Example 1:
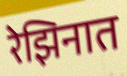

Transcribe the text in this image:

रेझिनात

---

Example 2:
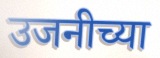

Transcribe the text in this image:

उजनीच्या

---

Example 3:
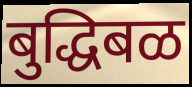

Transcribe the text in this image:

बुद्धिबळ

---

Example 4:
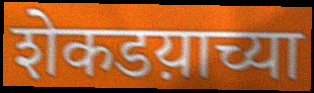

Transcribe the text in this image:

शेकडय़ाच्या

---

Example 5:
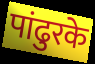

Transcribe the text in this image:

पांढुरके